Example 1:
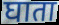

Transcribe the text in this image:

घाता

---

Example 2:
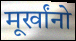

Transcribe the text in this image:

मूर्खांनो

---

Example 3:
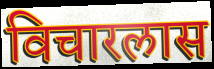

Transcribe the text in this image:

विचारलास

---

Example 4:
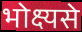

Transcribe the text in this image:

भोक्ष्यसे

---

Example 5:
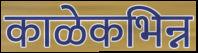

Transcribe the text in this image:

काळेकभिन्न